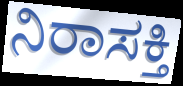
ನಿರಾಸಕ್ತಿ